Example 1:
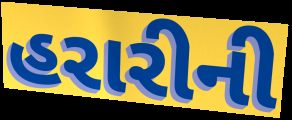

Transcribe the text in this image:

હરારીની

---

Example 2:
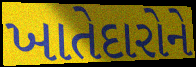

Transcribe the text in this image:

ખાતેદારોને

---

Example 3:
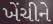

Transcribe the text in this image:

ખેંચીને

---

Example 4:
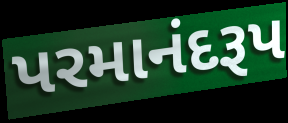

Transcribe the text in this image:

પરમાનંદરૂપ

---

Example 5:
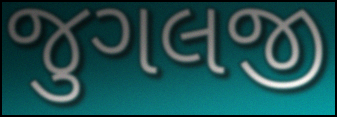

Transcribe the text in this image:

જુગલજી